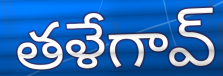
తళేగావ్